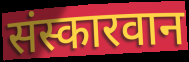
संस्कारवान